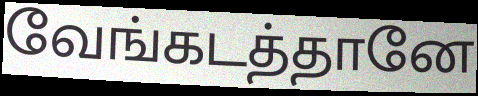
வேங்கடத்தானே